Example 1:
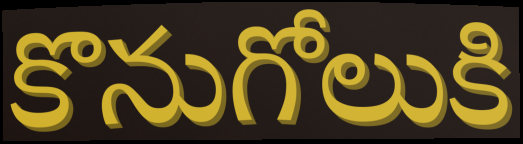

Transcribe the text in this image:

కొనుగోలుకి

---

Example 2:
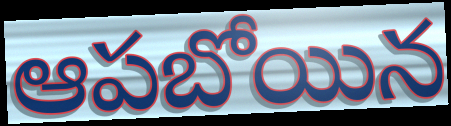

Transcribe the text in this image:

ఆపబోయిన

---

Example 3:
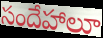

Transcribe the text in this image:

సందేహాలూ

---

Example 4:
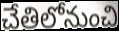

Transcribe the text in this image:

చేతిలోనుంచి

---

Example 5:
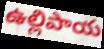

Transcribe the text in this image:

ఉల్లిపాయ